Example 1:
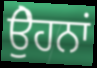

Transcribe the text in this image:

ਉੇਹਨਾਂ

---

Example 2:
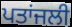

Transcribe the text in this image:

ਪਤਾਂਜਲੀ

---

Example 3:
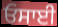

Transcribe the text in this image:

ਓਸਾਈ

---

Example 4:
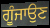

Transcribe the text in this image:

ਗੂੰਜਾਉਣ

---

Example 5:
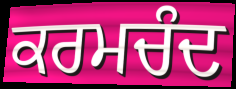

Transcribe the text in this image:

ਕਰਮਚੰਦ